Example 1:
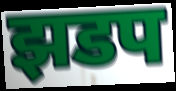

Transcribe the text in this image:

झडप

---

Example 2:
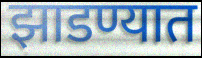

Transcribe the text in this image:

झाडण्यात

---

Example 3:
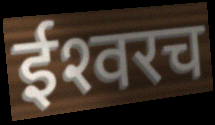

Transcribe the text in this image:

ईश्वरच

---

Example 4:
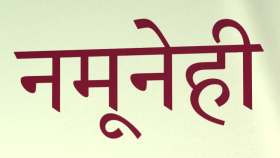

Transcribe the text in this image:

नमूनेही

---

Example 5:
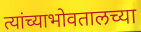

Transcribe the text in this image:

त्यांच्याभोवतालच्या